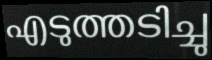
എടുത്തടിച്ചു